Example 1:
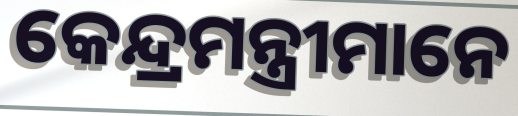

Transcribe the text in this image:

କେନ୍ଦ୍ରମନ୍ତ୍ରୀମାନେ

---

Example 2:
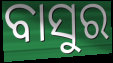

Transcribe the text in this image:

ବାସୁର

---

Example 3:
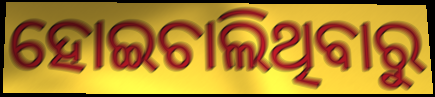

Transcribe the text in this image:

ହୋଇଚାଲିଥିବାରୁ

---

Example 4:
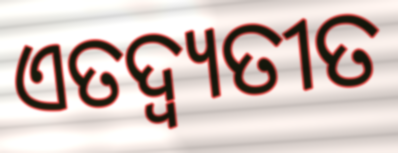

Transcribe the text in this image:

ଏତଦ୍ବ୍ୟତୀତ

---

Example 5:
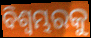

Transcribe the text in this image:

ବିଶ୍ୱମ୍ଭରକୁ